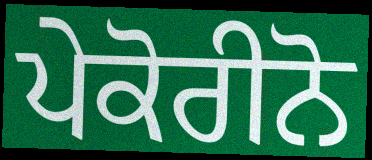
ਪੇਕੋਰੀਨੋ